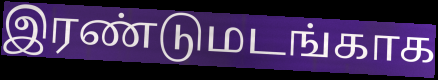
இரண்டுமடங்காக